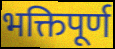
भक्तिपूर्ण